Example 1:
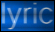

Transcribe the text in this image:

lyric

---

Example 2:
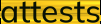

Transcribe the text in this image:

attests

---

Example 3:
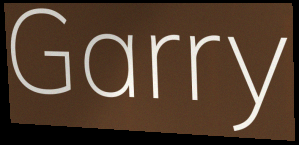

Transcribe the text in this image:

Garry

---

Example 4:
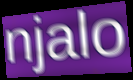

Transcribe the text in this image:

njalo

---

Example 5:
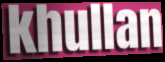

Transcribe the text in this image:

khullan